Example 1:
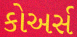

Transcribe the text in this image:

કોઅર્સ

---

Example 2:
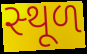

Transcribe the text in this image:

સ્‍થૂળ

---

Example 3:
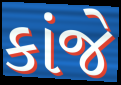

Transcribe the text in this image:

કાંજે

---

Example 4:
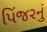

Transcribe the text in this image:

પિંજરનું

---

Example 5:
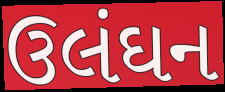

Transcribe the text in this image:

ઉલંઘન